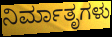
ನಿರ್ಮಾತೃಗಳು